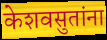
केशवसुतांना